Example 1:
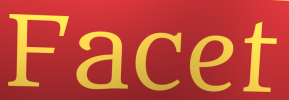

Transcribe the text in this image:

Facet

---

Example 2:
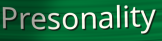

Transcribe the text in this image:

Presonality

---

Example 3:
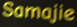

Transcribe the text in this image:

Samajie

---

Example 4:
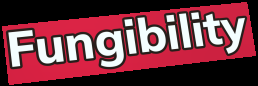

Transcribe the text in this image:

Fungibility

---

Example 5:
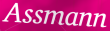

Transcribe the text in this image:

Assmann